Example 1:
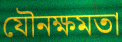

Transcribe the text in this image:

যৌনক্ষমতা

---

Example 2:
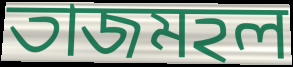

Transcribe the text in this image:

তাজমহল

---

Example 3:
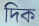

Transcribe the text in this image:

দিক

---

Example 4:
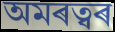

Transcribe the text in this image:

অমৰত্বৰ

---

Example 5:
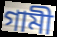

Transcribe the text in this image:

গামী